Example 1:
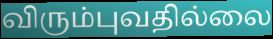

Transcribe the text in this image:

விரும்புவதில்லை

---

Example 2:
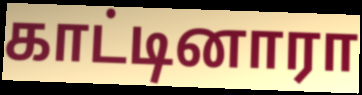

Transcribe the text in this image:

காட்டினாரா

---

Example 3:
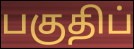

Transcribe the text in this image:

பகுதிப்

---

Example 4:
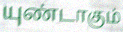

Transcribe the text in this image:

யுண்டாகும்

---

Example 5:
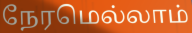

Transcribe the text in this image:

நேரமெல்லாம்